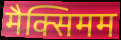
मैक्सिमम